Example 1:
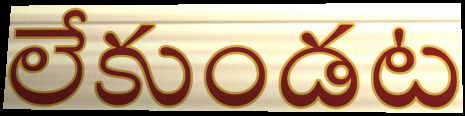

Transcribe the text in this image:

లేకుండట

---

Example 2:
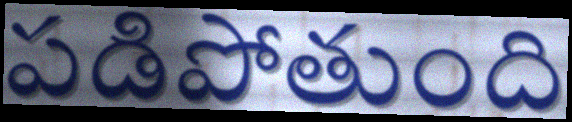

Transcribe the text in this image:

పడిపోతుంది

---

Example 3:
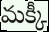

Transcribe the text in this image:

మక్కీ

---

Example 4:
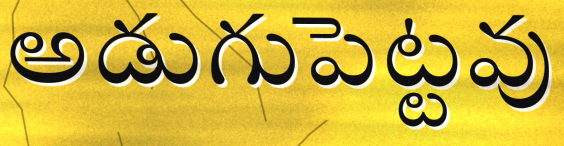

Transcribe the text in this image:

అడుగుపెట్టవు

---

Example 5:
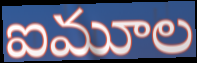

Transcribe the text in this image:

ఐమూల